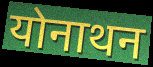
योनाथन